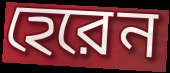
হেরেন